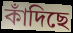
কাঁদিছে